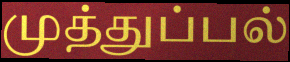
முத்துப்பல்